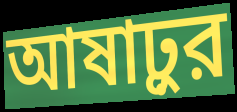
আষাঢ়ুর